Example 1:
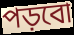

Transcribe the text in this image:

পড়বো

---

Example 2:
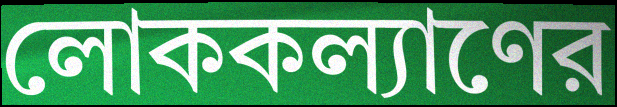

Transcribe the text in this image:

লোককল্যাণের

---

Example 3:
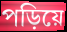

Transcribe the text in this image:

পড়িয়ে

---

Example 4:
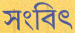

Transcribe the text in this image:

সংবিৎ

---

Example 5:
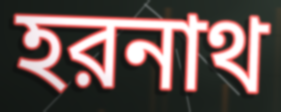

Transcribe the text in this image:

হরনাথ